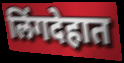
लिंगदेहात